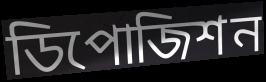
ডিপোজিশন